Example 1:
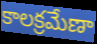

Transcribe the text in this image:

కాలక్రమేణా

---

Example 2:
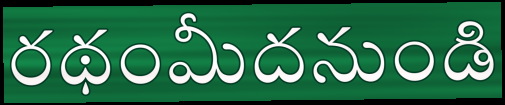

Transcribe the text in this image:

రథంమీదనుండి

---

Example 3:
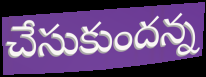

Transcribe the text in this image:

చేసుకుందన్న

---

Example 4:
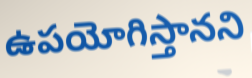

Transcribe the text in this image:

ఉపయోగిస్తానని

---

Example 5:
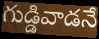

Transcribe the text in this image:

గుడ్డివాడనే